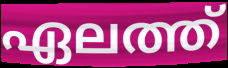
ഏലത്ത്